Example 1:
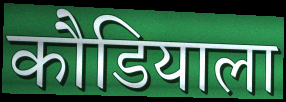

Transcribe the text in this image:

कौडियाला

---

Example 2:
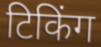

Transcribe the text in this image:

टिकिंग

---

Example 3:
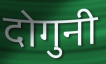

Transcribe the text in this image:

दोगुनी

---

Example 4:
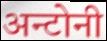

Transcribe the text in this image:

अन्टोनी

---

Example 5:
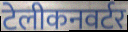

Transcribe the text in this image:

टेलीकनवर्टर